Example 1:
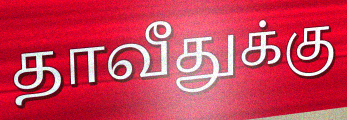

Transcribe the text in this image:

தாவீதுக்கு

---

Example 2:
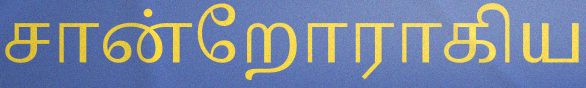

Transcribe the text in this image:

சான்றோராகிய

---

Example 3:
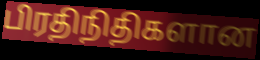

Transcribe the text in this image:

பிரதிநிதிகளான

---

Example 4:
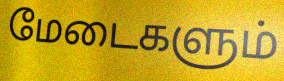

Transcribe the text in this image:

மேடைகளும்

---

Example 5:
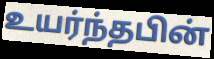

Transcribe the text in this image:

உயர்ந்தபின்